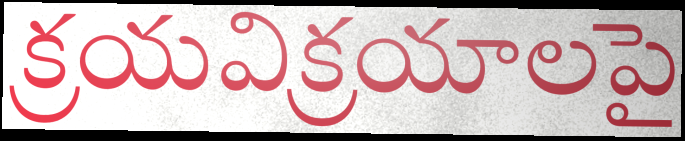
క్రయవిక్రయాలపై